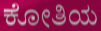
ಕೋತಿಯ